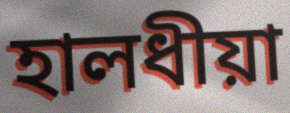
হালধীয়া